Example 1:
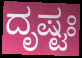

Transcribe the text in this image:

ದೃಷ್ಟಃ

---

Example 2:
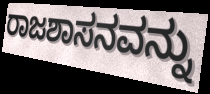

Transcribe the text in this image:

ರಾಜಶಾಸನವನ್ನು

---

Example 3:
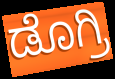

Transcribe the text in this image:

ಡೊಗ್ರಿ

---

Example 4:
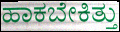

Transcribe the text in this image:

ಹಾಕಬೇಕಿತ್ತು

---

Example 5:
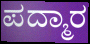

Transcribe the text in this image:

ಪದ್ಮಾರ